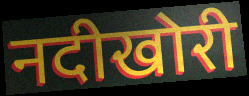
नदीखोरी